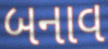
બનાવ